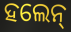
ହଲେନ୍